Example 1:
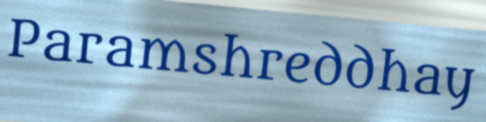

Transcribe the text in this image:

Paramshreddhay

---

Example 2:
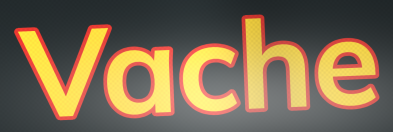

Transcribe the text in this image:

Vache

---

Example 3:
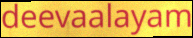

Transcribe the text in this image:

deevaalayam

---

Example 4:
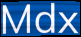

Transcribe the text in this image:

Mdx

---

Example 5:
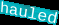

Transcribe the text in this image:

hauled